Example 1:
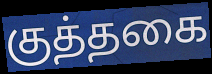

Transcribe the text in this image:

குத்தகை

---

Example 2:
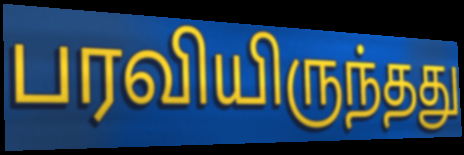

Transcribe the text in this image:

பரவியிருந்தது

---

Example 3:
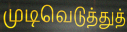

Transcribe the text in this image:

முடிவெடுத்துத்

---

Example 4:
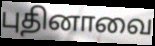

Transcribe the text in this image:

புதினாவை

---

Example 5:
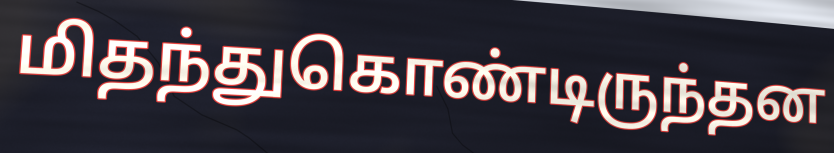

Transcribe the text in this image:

மிதந்துகொண்டிருந்தன